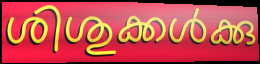
ശിശുക്കൾക്കു